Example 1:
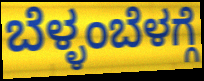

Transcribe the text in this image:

ಬೆಳ್ಳಂಬೆಳಗ್ಗೆ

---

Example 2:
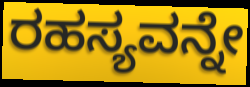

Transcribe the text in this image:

ರಹಸ್ಯವನ್ನೇ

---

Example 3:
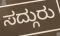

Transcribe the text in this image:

ಸದ್ಗುರು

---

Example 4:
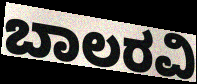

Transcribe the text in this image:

ಬಾಲರವಿ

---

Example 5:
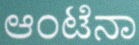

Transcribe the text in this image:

ಆಂಟೆನಾ